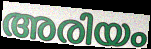
അരിയം